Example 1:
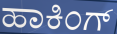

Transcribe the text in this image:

ಹಾಕಿಂಗ್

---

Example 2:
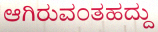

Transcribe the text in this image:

ಆಗಿರುವಂತಹದ್ದು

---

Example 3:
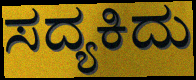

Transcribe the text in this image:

ಸದ್ಯಕಿದು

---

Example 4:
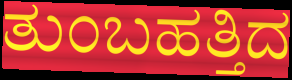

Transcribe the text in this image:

ತುಂಬಹತ್ತಿದ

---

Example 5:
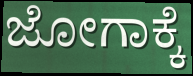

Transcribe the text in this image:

ಜೋಗಾಕ್ಕೆ